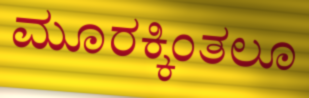
ಮೂರಕ್ಕಿಂತಲೂ